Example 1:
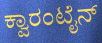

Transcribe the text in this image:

ಕ್ವಾರಂಟೈನ್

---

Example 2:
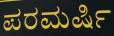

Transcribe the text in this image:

ಪರಮರ್ಷಿ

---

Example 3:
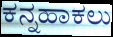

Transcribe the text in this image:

ಕನ್ನಹಾಕಲು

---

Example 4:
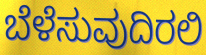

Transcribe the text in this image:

ಬೆಳೆಸುವುದಿರಲಿ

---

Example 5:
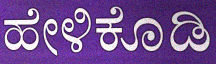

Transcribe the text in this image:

ಹೇಳಿಕೊಡಿ